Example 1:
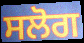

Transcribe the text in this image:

ਸਲੋਗ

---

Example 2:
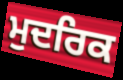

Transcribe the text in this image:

ਮੁਦਰਿਕ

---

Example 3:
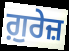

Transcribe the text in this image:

ਗ਼ੁਰੇਜ਼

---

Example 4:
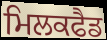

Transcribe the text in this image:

ਮਿਲਕਫੈਡ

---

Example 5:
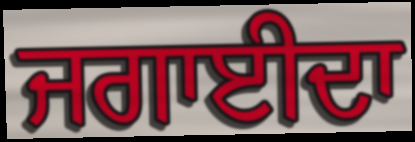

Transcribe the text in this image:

ਜਗਾਈਦਾ